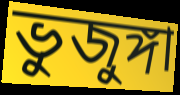
ভুজুঙ্গা